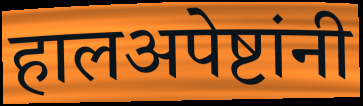
हालअपेष्टांनी